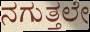
ನಗುತ್ತಲೇ